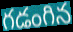
గడంగిన